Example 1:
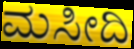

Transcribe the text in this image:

ಮಸೀದಿ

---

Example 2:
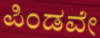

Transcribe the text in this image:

ಪಿಂಡವೇ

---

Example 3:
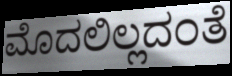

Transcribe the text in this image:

ಮೊದಲಿಲ್ಲದಂತೆ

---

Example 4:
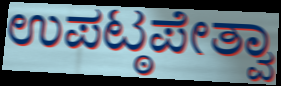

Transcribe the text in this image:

ಉಪಟ್ಠಪೇತ್ವಾ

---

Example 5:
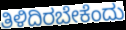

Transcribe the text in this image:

ತಿಳಿದಿರಬೇಕೆಂದು